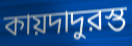
কায়দাদুরস্ত